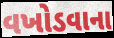
વખોડવાના